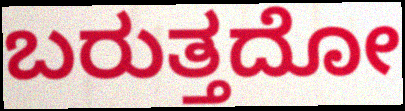
ಬರುತ್ತದೋ